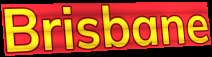
Brisbane